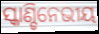
ସ୍କାଣ୍ଡିନେଭୀୟ